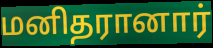
மனிதரானார்